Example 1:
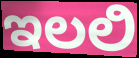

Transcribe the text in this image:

ಇಲಲಿ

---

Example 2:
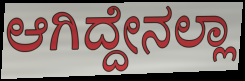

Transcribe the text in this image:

ಆಗಿದ್ದೇನಲ್ಲಾ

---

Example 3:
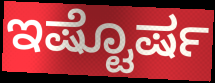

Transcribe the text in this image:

ಇಷ್ಟೊರ್ಷ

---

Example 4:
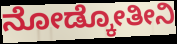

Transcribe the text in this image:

ನೋಡ್ಕೋತೀನಿ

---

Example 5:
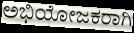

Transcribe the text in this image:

ಅಭಿಯೋಜಕರಾಗಿ